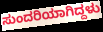
ಸುಂದರಿಯಾಗಿದ್ದಳು